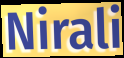
Nirali